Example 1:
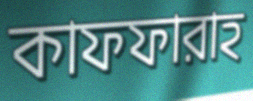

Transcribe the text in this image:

কাফফারাহ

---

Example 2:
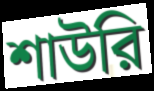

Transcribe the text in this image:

শাউরি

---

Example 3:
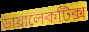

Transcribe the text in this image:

ডায়ালেকটিক্স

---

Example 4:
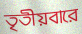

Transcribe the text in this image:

তৃতীয়বারে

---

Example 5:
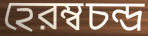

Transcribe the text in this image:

হেরম্বচন্দ্র